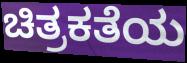
ಚಿತ್ರಕತೆಯ